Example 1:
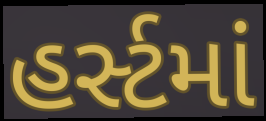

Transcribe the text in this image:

હર્સ્ટમાં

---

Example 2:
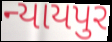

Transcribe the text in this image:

ન્યાયપુર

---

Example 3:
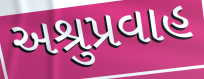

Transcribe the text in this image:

અશ્રુપ્રવાહ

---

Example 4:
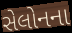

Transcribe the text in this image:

સેલોનના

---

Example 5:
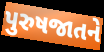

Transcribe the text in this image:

પુરુષજાતને